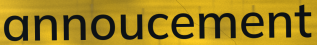
annoucement